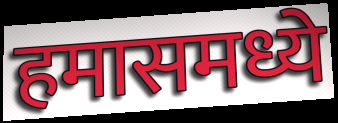
हमासमध्ये